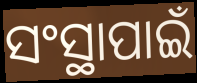
ସଂସ୍ଥାପାଇଁ